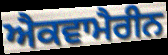
ਐਕਵਾਮੈਰੀਨ